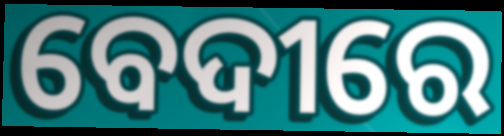
ବେଦୀରେ